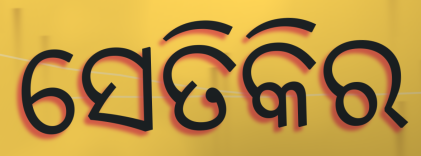
ସେତିକିର